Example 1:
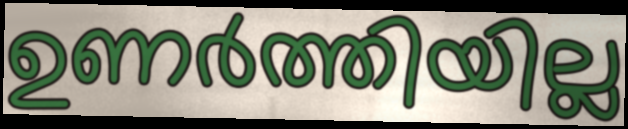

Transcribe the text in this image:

ഉണർത്തിയില്ല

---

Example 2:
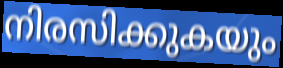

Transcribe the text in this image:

നിരസിക്കുകയും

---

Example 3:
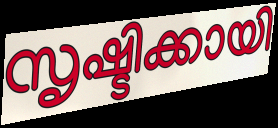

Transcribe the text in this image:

സൃഷ്ടിക്കായി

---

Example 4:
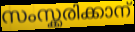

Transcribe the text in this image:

സംസ്ക്കരിക്കാന്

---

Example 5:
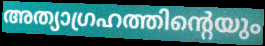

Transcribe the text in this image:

അത്യാഗ്രഹത്തിന്റെയും